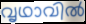
വൃഥാവിൽ